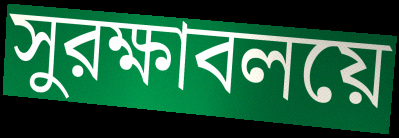
সুরক্ষাবলয়ে